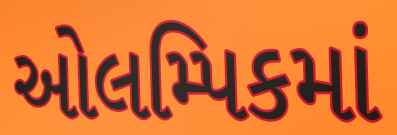
ઓલમ્પિકમાં